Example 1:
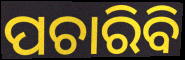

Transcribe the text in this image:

ପଚାରିବି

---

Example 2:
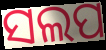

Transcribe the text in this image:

ସଲପ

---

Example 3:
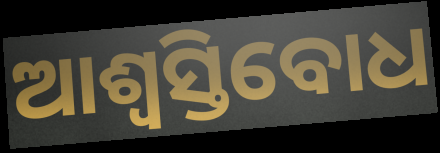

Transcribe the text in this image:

ଆଶ୍ଵସ୍ତିବୋଧ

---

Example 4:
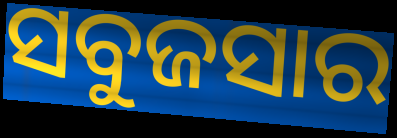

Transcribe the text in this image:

ସବୁଜସାର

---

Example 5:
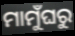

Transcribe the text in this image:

ମାମୁଁଘରୁ